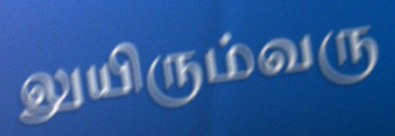
லுயிரும்வரு